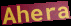
Ahera